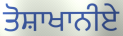
ਤੋਸ਼ਾਖਾਨੀਏ